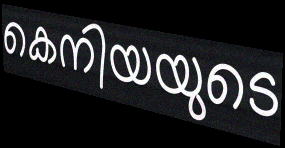
കെനിയയുടെ